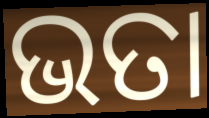
ଭତା